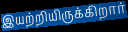
இயற்றியிருக்கிறார்